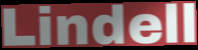
Lindell